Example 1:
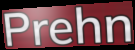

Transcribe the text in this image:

Prehn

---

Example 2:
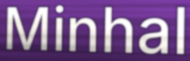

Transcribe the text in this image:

Minhal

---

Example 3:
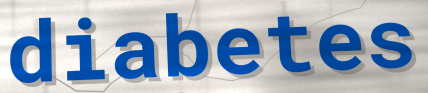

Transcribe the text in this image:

diabetes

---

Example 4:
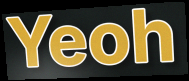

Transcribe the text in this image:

Yeoh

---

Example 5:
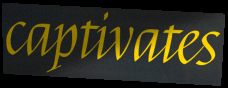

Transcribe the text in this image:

captivates